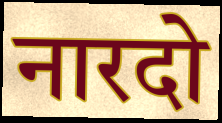
नारदो